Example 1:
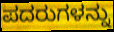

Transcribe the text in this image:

ಪದರುಗಳನ್ನು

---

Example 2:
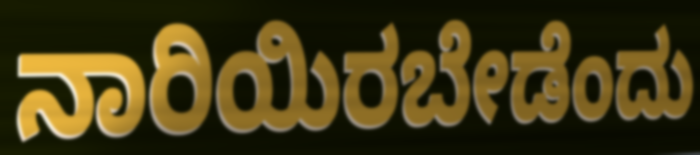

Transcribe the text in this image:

ನಾರಿಯಿರಬೇಡೆಂದು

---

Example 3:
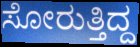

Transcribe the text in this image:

ಸೋರುತ್ತಿದ್ದ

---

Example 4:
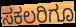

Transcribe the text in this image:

ಸಕಲರಿಗೂ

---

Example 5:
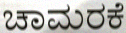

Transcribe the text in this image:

ಚಾಮರಕೆ